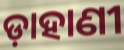
ଡ଼ାହାଣୀ